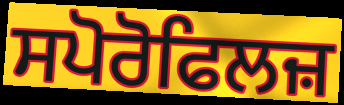
ਸਪੋਰੋਫਿਲਜ਼